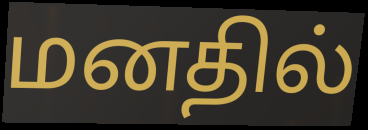
மனதில்